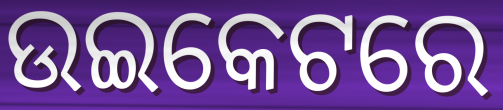
ଉଇକେଟରେ